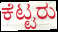
ಕೆಟ್ಟರು